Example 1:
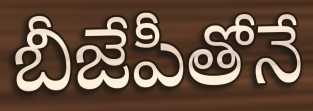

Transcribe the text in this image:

బీజేపీతోనే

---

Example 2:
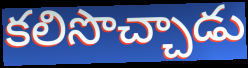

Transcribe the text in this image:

కలిసొచ్చాడు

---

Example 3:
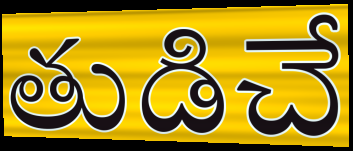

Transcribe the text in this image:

తుడిచే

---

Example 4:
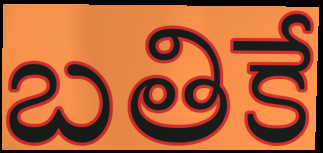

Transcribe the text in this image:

బతికే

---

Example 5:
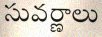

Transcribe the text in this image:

సువర్ణాలు